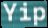
Yip